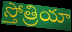
స్తోత్రియా